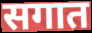
सगात